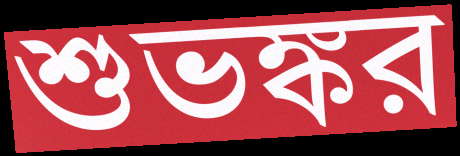
শুভঙ্কর